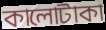
কালোটাকা